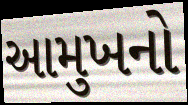
આમુખનો